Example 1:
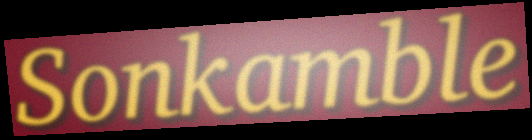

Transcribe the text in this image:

Sonkamble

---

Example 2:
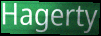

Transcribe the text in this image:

Hagerty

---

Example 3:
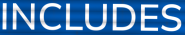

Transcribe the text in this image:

INCLUDES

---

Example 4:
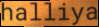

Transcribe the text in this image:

halliya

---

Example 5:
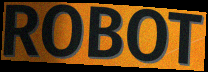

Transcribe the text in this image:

ROBOT